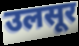
उलसूर